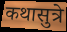
कथासुत्रे